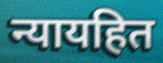
न्यायहित